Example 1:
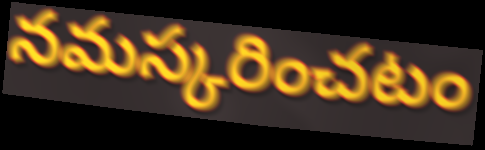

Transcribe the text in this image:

నమస్కరించటం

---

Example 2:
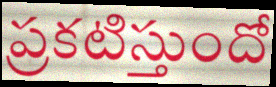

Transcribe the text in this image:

ప్రకటిస్తుందో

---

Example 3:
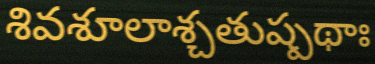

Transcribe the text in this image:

శివశూలాశ్చతుష్పథాః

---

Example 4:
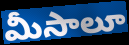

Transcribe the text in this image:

మీసాలూ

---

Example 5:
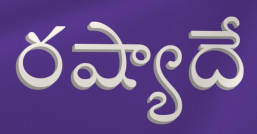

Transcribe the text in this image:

రష్యాదే